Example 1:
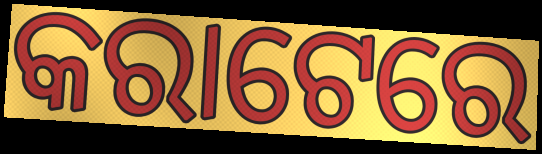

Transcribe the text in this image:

କରାଟେରେ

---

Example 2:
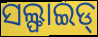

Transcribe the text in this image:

ସଲ୍ଫାଇଡ୍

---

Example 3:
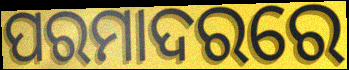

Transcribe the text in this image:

ପରମାଦରରେ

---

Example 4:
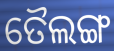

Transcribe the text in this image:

ତୈଲଙ୍ଗ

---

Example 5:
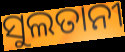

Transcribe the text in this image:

ସୁଲତାନୀ